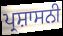
ਪ੍ਰਸ਼ਾਸਨੀ